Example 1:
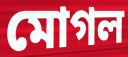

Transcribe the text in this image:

মোগল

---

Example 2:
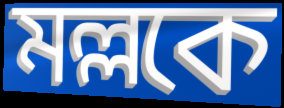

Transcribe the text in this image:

মল্লকে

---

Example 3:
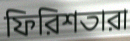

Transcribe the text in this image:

ফিরিশতারা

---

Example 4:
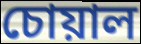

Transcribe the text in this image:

চোয়াল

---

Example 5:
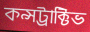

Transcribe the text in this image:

কন্সট্রাক্টিভ